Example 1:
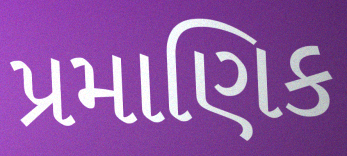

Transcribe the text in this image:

પ્રમાણિક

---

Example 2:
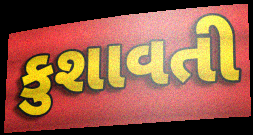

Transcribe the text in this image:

કુશાવતી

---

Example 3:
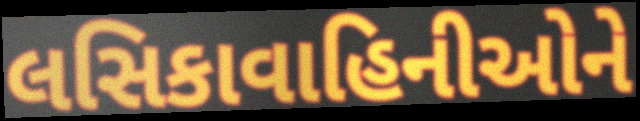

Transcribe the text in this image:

લસિકાવાહિનીઓને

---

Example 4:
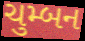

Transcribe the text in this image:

ચુમ્બન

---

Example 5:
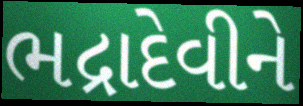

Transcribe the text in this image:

ભદ્રાદેવીને